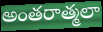
అంతరాత్మలా